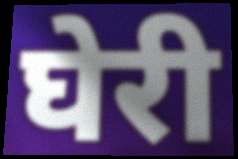
घेरी